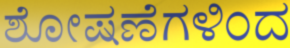
ಶೋಷಣೆಗಳಿಂದ